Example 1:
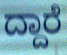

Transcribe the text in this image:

ದ್ದಾರೆ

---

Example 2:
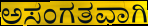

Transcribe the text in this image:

ಅಸಂಗತವಾಗಿ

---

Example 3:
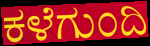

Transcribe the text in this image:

ಕಳೆಗುಂದಿ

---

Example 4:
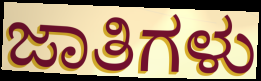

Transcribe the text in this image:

ಜಾತಿಗಳು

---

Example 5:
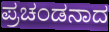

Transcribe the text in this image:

ಪ್ರಚಂಡನಾದ